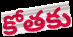
కోతకు